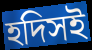
হদিসই